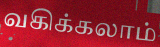
வகிக்கலாம்